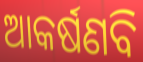
ଆକର୍ଷଣବି